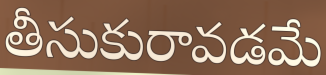
తీసుకురావడమే